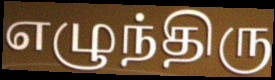
எழுந்திரு